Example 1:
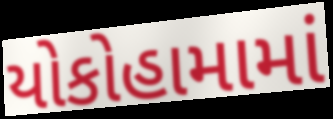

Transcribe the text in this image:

યોકોહામામાં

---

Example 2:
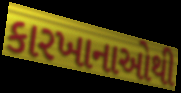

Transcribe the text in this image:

કારખાનાઓથી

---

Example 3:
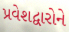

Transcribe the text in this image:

પ્રવેશદ્વારોને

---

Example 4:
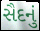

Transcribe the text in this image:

સૈદનું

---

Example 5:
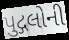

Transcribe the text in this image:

પુદ્ગલોની